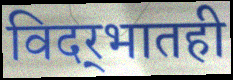
विदर्भातही